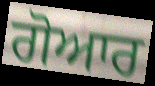
ਗੋਆਰ